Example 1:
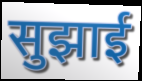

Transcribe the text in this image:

सुझाई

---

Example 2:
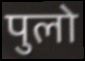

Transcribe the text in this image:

पुलो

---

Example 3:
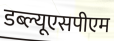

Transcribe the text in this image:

डब्ल्यूएसपीएम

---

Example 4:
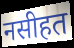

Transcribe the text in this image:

नसीहत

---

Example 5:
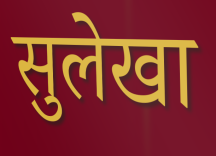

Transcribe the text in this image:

सुलेखा